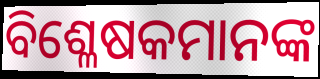
ବିଶ୍ଳେଷକମାନଙ୍କ